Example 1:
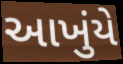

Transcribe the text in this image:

આખુંયે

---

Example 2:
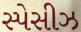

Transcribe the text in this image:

સ્પેસીઝ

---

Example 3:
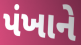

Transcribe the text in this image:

પંખાને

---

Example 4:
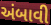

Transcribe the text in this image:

અંબાવી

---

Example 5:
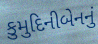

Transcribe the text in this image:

કુમુદિનીબેનનું